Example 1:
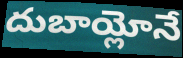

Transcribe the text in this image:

దుబాయ్లోనే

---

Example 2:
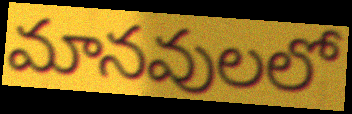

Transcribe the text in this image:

మానవులలో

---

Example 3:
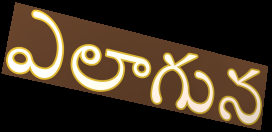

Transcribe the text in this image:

ఎలాగున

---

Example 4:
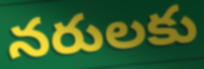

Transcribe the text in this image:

నరులకు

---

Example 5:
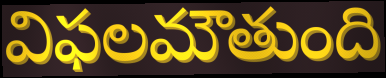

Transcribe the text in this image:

విఫలమౌతుంది